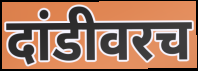
दांडीवरच